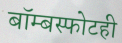
बॉम्बस्फोटही